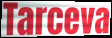
Tarceva